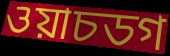
ওয়াচডগ